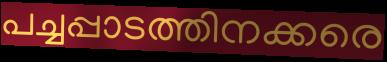
പച്ചപ്പാടത്തിനക്കരെ